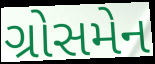
ગ્રોસમેન